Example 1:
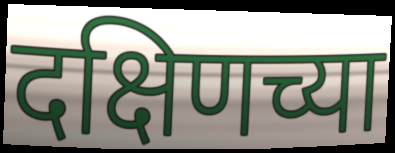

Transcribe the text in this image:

दक्षिणच्या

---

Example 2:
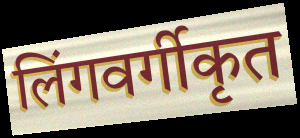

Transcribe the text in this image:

लिंगवर्गीकृत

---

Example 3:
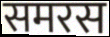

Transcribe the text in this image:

समरस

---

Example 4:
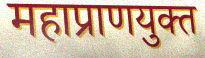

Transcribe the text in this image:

महाप्राणयुक्त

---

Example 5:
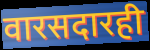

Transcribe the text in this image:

वारसदारही